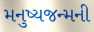
મનુષ્યજન્મની